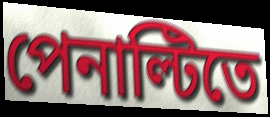
পেনাল্টিতে